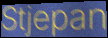
Stjepan